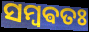
ସମ୍ବଵତଃ